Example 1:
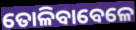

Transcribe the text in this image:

ତୋଳିବାବେଳେ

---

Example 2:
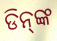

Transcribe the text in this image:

ଡିନ୍‍ଙ୍କ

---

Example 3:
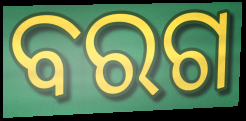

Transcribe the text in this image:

ବରଗ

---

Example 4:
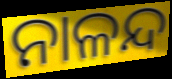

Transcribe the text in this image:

ନାଳନ୍ଦ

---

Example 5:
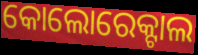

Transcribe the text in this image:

କୋଲୋରେକ୍ଟାଲ